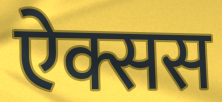
ऐक्सस